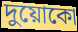
দুয়োকো